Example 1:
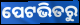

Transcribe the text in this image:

ପେଟଭିତରୁ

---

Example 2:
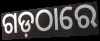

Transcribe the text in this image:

ଗଡ଼ଠାରେ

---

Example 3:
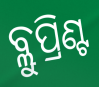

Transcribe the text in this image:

ବ୍ଲୁପ୍ରିଣ୍ଟ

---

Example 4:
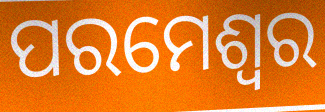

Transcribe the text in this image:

ପରମେଶ୍ୱର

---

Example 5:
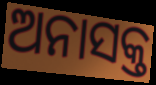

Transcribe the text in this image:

ଅନାସକ୍ତ